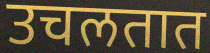
उचलतात